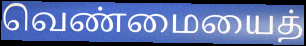
வெண்மையைத்